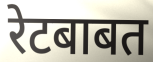
रेटबाबत